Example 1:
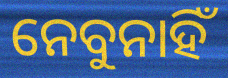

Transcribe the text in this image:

ନେବୁନାହିଁ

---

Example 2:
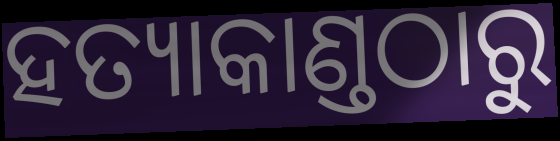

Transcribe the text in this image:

ହତ୍ୟାକାଣ୍ଡଠାରୁ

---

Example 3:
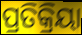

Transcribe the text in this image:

ପ୍ରତିକ୍ରିୟା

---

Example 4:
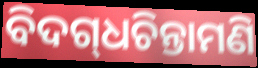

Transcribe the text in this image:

ବିଦଗ୍‌ଧଚିନ୍ତାମଣି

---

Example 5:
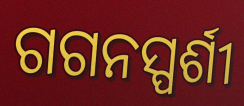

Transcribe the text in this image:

ଗଗନସ୍ପର୍ଶୀ